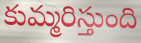
కుమ్మరిస్తుంది